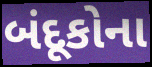
બંદૂકોના